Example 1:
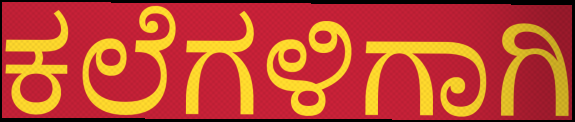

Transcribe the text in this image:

ಕಲೆಗಳಿಗಾಗಿ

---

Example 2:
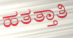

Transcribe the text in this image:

ಹತತ್ತಾತಿ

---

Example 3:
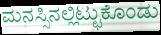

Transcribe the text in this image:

ಮನಸ್ಸಿನಲ್ಲಿಟ್ಟುಕೊಂಡು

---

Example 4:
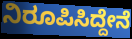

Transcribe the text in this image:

ನಿರೂಪಿಸಿದ್ದೇನೆ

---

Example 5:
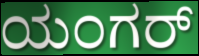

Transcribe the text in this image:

ಯಂಗರ್